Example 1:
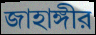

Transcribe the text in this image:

জাহাঙ্গীর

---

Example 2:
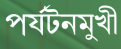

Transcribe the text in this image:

পর্যটনমুখী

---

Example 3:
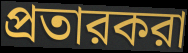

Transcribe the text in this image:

প্রতারকরা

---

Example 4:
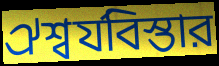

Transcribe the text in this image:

ঐশ্বর্যবিস্তার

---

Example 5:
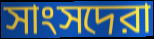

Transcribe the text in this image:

সাংসদেরা